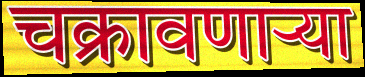
चक्रावणाऱ्या